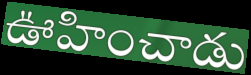
ఊహించాడు